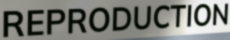
REPRODUCTION